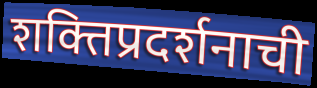
शक्तिप्रदर्शनाची